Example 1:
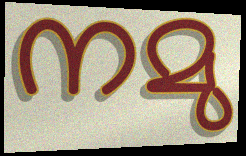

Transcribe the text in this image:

നമു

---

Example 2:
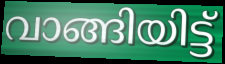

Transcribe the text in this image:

വാങ്ങിയിട്ട്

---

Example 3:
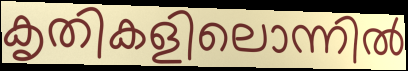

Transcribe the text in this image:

കൃതികളിലൊന്നിൽ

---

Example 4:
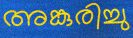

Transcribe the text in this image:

അങ്കുരിച്ചു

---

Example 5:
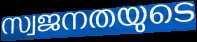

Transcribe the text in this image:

സ്വജനതയുടെ